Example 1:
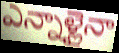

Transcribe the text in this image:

ఎన్నాళ్లైనా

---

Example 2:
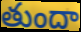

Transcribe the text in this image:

తుందా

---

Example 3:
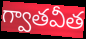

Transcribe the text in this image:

గ్వాతవీత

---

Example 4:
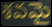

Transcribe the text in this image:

శవమై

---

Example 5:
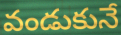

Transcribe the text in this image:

వండుకునే